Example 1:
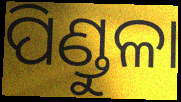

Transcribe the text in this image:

ପିଣ୍ଡୁଳା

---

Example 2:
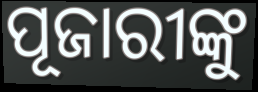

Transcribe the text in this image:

ପୂଜାରୀଙ୍କୁ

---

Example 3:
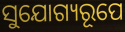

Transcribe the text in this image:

ସୁଯୋଗ୍ୟରୂପେ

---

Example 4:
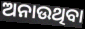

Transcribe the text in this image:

ଅନାଉଥିବା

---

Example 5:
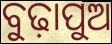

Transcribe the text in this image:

ବୁଢ଼ାପୁଅ